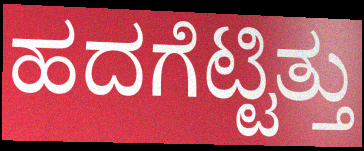
ಹದಗೆಟ್ಟಿತ್ತು